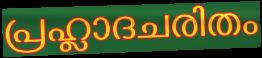
പ്രഹ്ലാദചരിതം